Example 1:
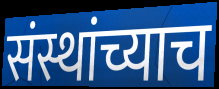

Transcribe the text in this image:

संस्थांच्याच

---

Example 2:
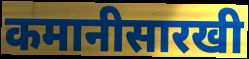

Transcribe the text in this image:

कमानीसारखी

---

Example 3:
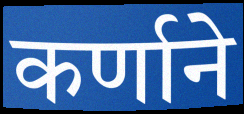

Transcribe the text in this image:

कर्णाने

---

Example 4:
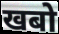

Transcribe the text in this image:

खबो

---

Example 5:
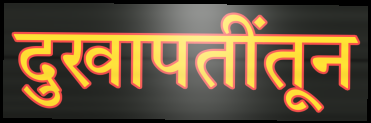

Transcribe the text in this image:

दुखापतींतून